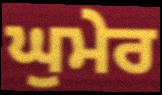
ਘੁਮੇਰ